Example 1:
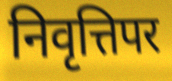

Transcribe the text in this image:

निवृत्तिपर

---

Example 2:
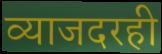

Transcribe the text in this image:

व्याजदरही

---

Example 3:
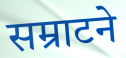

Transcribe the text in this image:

सम्राटने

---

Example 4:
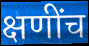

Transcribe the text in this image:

क्षणींच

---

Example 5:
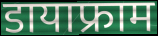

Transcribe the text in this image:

डायाफ्राम